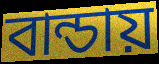
বান্ডায়